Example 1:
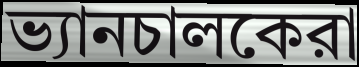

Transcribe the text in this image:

ভ্যানচালকেরা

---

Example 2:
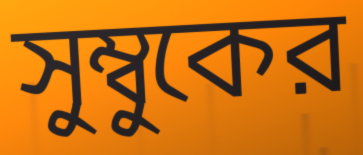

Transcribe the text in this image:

সুম্বুকের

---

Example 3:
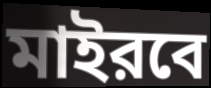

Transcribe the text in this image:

মাইরবে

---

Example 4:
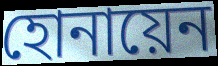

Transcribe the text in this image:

হোনায়েন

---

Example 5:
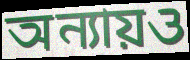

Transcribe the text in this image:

অন্যায়ও